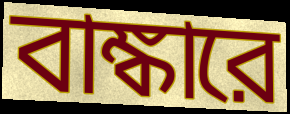
বাঙ্কারে